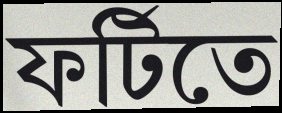
ফর্টিতে